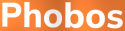
Phobos